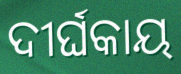
ଦୀର୍ଘକାୟ